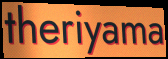
theriyama